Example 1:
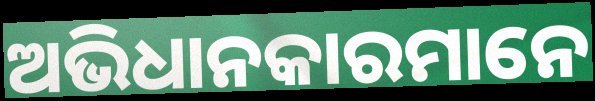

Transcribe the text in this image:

ଅଭିଧାନକାରମାନେ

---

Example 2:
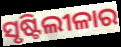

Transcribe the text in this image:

ସୃଷ୍ଟିଲୀଳାର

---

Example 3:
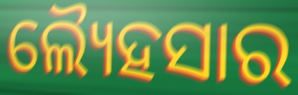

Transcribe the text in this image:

ଲ୍ୟୈହସାର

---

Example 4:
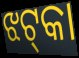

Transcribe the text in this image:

ଝଟ୍‍କା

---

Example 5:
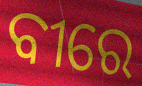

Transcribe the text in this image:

ବୀରେ